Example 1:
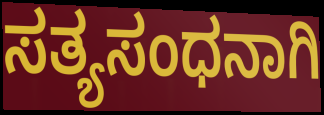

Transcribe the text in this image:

ಸತ್ಯಸಂಧನಾಗಿ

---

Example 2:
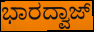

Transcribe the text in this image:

ಭಾರದ್ವಾಜ್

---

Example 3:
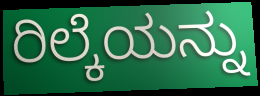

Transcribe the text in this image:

ರಿಲ್ಕೆಯನ್ನು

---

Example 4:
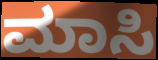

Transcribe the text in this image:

ಮಾಸಿ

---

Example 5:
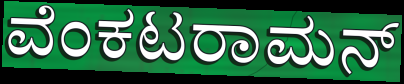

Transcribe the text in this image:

ವೆಂಕಟರಾಮನ್